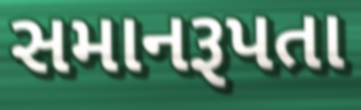
સમાનરૂપતા